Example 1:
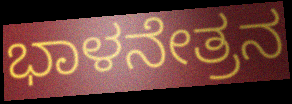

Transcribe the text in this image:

ಭಾಳನೇತ್ರನ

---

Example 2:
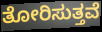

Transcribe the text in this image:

ತೋರಿಸುತ್ತವೆ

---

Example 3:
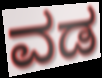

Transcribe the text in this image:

ವಡ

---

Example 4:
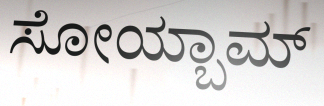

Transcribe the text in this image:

ಸೋಯ್ಬಾಮ್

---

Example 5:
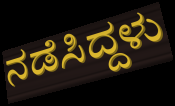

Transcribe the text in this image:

ನಡೆಸಿದ್ದಳು